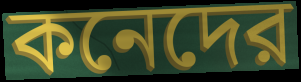
কনেদের